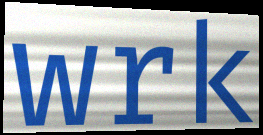
wrk